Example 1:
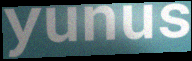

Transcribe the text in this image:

yunus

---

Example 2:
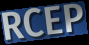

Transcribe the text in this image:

RCEP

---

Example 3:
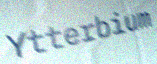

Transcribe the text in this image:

Ytterbium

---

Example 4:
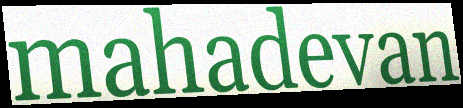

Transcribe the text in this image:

mahadevan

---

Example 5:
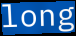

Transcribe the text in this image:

long